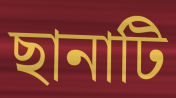
ছানাটি